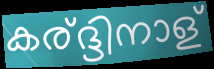
കര്ദ്ദിനാള്